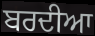
ਬਰਦੀਆ